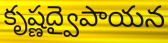
కృష్ణద్వైపాయన